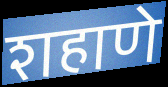
शहाणे